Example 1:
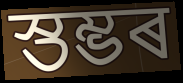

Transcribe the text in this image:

স্তম্ভৰ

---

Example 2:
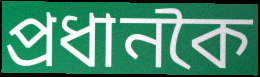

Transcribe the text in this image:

প্ৰধানকৈ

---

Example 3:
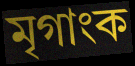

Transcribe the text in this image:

মৃগাংক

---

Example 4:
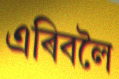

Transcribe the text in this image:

এৰিবলৈ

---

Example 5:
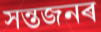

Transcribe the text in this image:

সন্তজনৰ